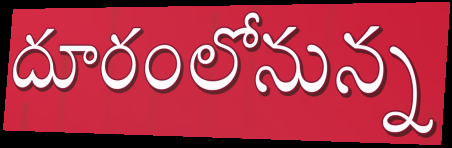
దూరంలోనున్న